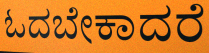
ಓದಬೇಕಾದರೆ